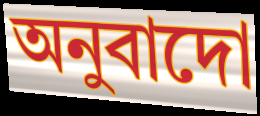
অনুবাদো